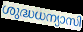
ശുദ്ധധന്യാസി